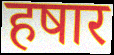
हषार